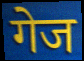
गेज